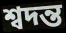
শ্বদন্ত